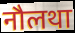
नौलथा